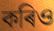
কৰিও